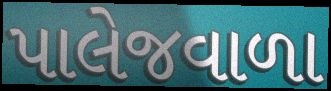
પાલેજવાળા